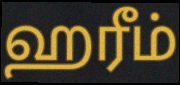
ஹரீம்